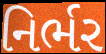
નિર્ભર